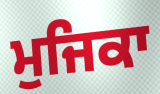
ਮੁਜਿਕਾ